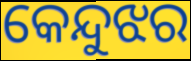
କେନ୍ଦୁଝର